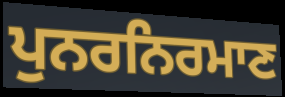
ਪੁਨਰਨਿਰਮਾਣ